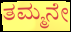
ತಮ್ಮನೇ